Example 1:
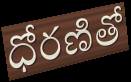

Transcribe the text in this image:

ధోరణితో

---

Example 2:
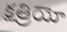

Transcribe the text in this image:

క్షత్రియో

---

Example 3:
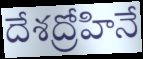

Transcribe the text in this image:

దేశద్రోహినే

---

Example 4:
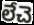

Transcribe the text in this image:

లేచె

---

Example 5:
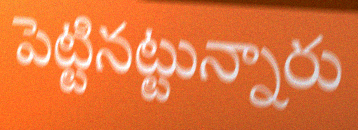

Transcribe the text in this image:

పెట్టినట్టున్నారు